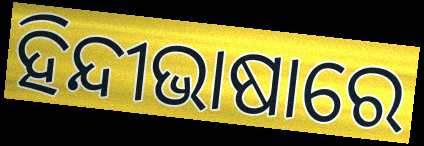
ହିନ୍ଦୀଭାଷାରେ